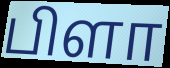
பிளா